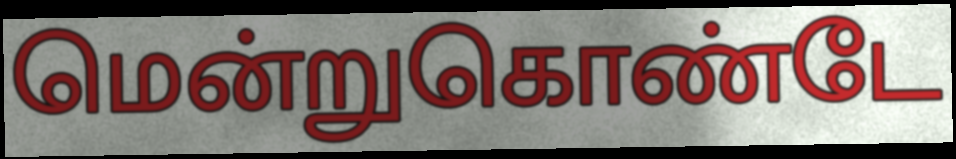
மென்றுகொண்டே